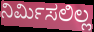
ನಿರ್ಮಿಸಲಿಲ್ಲ